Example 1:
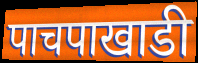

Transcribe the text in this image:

पाचपाखाडी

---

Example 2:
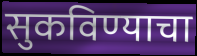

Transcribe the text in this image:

सुकविण्याचा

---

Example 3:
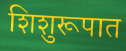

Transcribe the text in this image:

शिशुरूपात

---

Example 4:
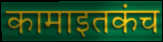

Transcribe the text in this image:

कामाइतकंच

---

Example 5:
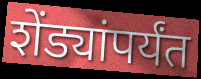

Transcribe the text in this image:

शेंड्यांपर्यंत